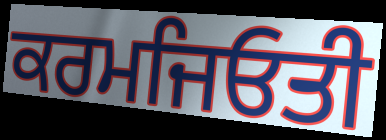
ਕਰਮਜਿਓਤੀ